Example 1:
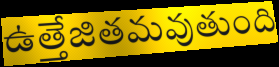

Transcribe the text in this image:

ఉత్తేజితమవుతుంది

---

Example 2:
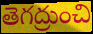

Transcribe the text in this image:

తెగద్రుంచి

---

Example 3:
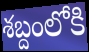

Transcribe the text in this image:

శబ్దంలోకి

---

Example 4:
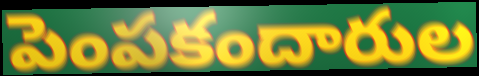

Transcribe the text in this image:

పెంపకందారుల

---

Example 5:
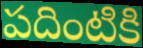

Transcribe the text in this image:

పదింటికి